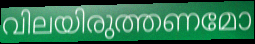
വിലയിരുത്തണമോ